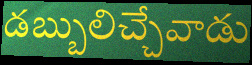
డబ్బులిచ్చేవాడు